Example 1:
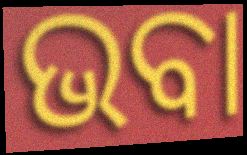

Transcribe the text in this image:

ଭବା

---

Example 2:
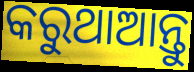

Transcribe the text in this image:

କରୁଥାଆନ୍ତୁ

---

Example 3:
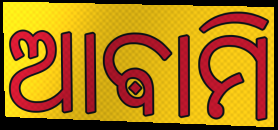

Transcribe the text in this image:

ଆଵାମି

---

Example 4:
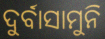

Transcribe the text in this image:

ଦୁର୍ବାସାମୁନି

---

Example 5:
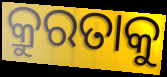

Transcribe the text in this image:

କ୍ରୁରତାକୁ